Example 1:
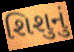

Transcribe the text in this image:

શિશુનું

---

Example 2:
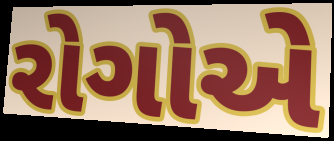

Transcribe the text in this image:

રોગોએ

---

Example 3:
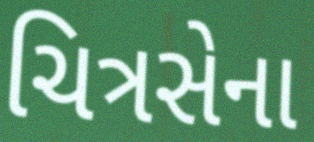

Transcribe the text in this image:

ચિત્રસેના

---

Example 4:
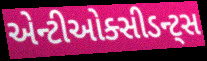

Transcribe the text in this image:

એન્ટીઓક્સીડન્ટ્સ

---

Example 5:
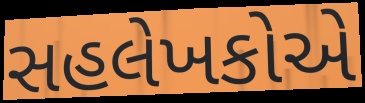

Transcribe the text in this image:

સહલેખકોએ